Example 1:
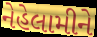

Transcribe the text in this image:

નેહેલામીને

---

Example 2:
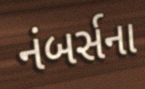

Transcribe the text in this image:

નંબર્સના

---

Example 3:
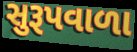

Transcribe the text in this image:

સુરૂપવાળા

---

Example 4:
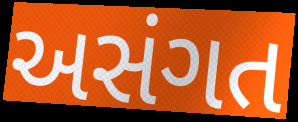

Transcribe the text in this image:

અસંગત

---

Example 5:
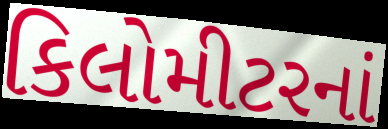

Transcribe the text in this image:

કિલોમીટરનાં